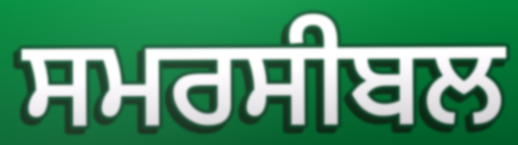
ਸਮਰਸੀਬਲ